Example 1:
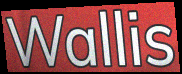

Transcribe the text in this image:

Wallis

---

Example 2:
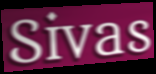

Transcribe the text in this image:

Sivas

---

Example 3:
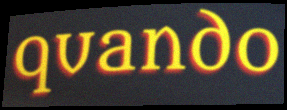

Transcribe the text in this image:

quando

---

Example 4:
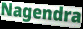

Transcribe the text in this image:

Nagendra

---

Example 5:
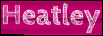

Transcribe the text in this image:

Heatley